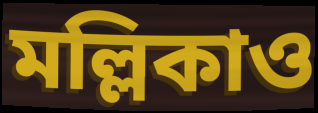
মল্লিকাও